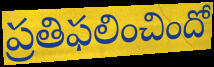
ప్రతిఫలించిందో